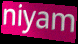
niyam